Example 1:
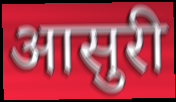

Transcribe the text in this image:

आसुरी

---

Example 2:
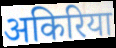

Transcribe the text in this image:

अकिरिया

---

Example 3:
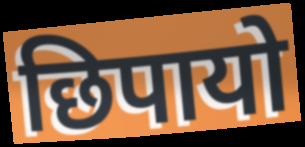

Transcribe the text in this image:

छिपायो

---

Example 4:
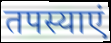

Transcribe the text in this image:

तपस्याएं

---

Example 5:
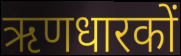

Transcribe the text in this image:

ऋणधारकों